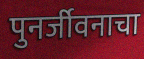
पुनर्जीवनाचा